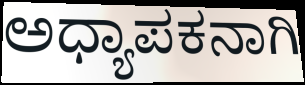
ಅಧ್ಯಾಪಕನಾಗಿ